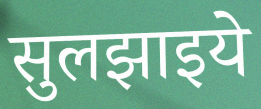
सुलझाइये